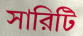
সারিটি